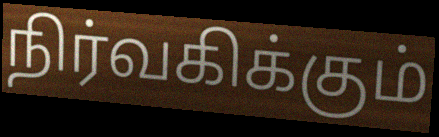
நிர்வகிக்கும்